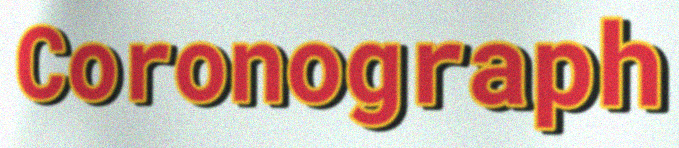
Coronograph